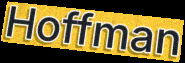
Hoffman